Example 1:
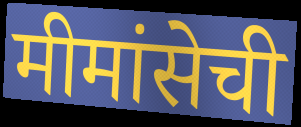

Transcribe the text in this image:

मीमांसेची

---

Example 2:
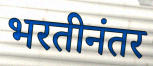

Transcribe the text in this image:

भरतीनंतर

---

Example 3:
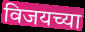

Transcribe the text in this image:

विजयच्या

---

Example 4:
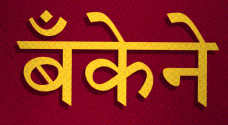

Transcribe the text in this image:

बँकेने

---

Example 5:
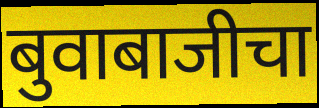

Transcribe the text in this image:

बुवाबाजीचा